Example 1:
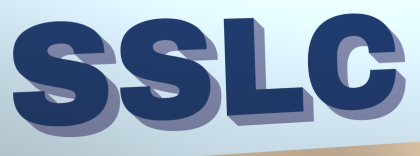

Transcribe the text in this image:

SSLC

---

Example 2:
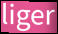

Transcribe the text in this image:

liger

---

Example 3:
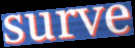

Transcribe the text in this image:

surve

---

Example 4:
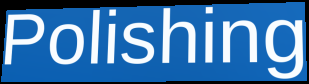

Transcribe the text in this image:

Polishing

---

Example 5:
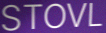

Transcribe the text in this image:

STOVL